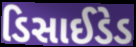
ડિસાઈડેડ